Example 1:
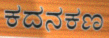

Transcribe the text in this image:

ಕದನಕಣ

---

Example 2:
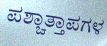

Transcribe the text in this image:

ಪಶ್ಚಾತ್ತಾಪಗಳ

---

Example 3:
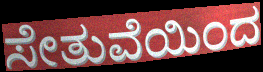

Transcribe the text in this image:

ಸೇತುವೆಯಿಂದ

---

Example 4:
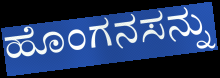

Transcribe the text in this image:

ಹೊಂಗನಸನ್ನು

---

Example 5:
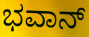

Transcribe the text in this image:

ಭವಾನ್